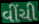
વીંચી